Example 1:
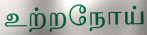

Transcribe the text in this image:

உற்றநோய்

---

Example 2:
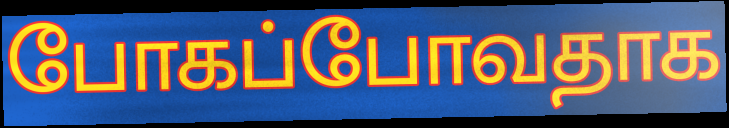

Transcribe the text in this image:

போகப்போவதாக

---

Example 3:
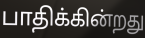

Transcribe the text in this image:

பாதிக்கின்றது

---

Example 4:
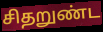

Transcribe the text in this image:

சிதறுண்ட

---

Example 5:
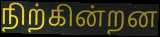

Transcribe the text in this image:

நிற்கின்றன